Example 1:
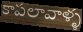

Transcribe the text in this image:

కాపలావాళ్ళ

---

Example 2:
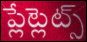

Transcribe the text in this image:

ప్లేట్లెట్స్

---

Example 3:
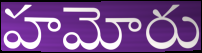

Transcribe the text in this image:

హమోరు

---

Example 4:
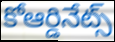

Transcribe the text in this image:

కోఆర్డినేట్స్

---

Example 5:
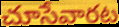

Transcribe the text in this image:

చూసేవారట